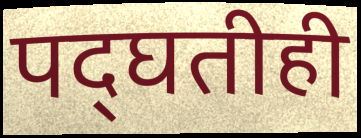
पद्घतीही